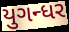
યુગન્ધર